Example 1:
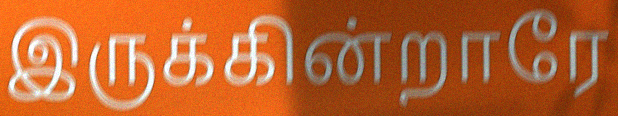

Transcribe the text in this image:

இருக்கின்றாரே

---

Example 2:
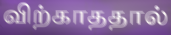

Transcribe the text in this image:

விற்காததால்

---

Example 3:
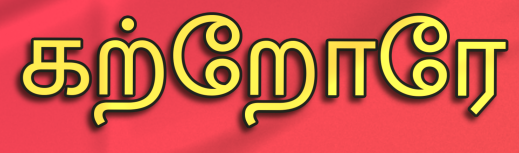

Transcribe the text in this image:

கற்றோரே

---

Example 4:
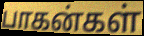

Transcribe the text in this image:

பாகன்கள்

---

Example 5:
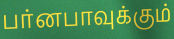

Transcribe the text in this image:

பர்னபாவுக்கும்